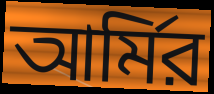
আর্মির